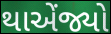
થાએંજ્યો